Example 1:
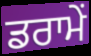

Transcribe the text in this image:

ਡਰਾਮੇਂ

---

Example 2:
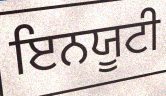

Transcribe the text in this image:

ਇਨਯੂਟੀ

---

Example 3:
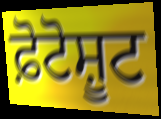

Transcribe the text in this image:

ਫ਼ੋਟੋਸ਼ੂਟ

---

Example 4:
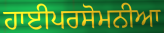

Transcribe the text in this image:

ਹਾਈਪਰਸੋਮਨੀਆ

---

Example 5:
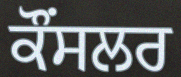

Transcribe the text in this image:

ਕੌੰਸਲਰ